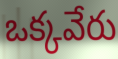
ఒక్కవేరు